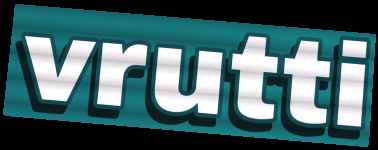
vrutti